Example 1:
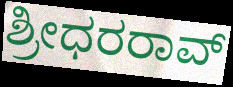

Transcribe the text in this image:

ಶ್ರೀಧರರಾವ್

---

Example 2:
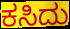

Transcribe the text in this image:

ಕಸಿದು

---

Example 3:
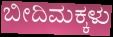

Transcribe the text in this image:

ಬೀದಿಮಕ್ಕಳು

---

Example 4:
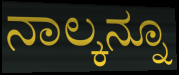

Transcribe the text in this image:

ನಾಲ್ಕನ್ನೂ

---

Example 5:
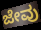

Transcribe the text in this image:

ಜೇವು